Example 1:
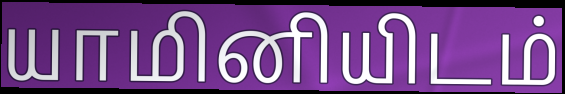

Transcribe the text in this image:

யாமினியிடம்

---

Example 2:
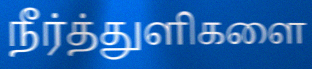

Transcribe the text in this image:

நீர்த்துளிகளை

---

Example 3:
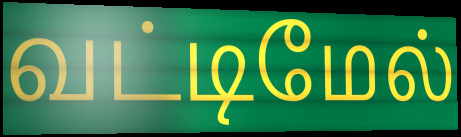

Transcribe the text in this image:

வட்டிமேல்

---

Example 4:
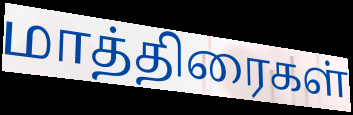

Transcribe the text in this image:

மாத்திரைகள்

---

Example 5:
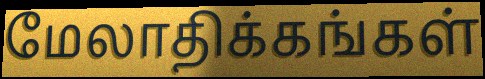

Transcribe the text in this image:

மேலாதிக்கங்கள்